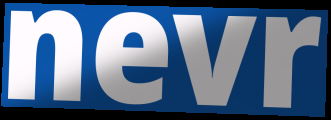
nevr